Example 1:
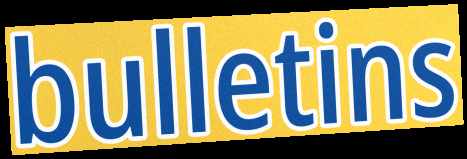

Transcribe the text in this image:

bulletins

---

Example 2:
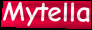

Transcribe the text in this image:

Mytella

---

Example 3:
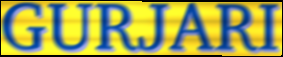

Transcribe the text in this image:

GURJARI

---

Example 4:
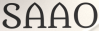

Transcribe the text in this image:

SAAO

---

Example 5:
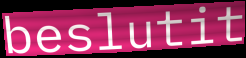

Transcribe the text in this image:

beslutit